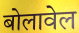
बोलावेल